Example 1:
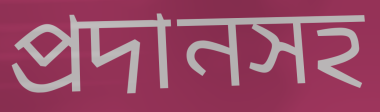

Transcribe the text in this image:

প্রদানসহ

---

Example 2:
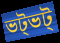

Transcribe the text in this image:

ভট্ভট্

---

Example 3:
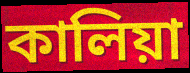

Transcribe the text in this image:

কালিয়া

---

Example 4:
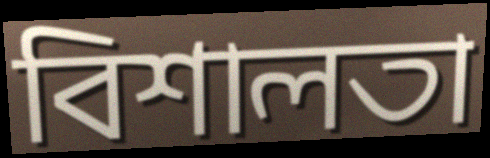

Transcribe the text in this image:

বিশালতা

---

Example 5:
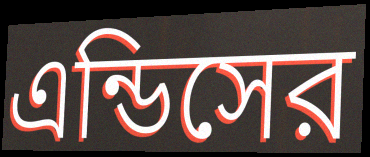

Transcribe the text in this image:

এন্ডিসের